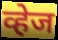
व्हेज